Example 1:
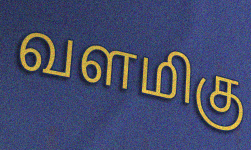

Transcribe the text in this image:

வளமிகு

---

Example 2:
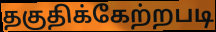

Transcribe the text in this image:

தகுதிக்கேற்றபடி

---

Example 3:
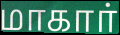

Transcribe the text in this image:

மாகார்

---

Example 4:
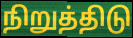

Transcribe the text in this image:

நிறுத்திடு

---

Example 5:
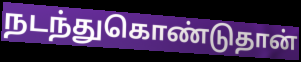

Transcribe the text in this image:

நடந்துகொண்டுதான்